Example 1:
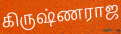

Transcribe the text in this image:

கிருஷ்ணராஜ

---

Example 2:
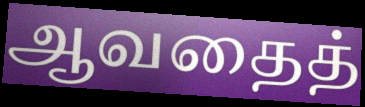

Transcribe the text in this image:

ஆவதைத்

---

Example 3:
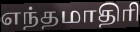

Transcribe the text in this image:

எந்தமாதிரி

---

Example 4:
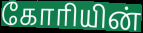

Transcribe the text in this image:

கோரியின்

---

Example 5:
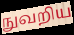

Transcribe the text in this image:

நுவறிய